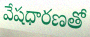
వేషధారణతో